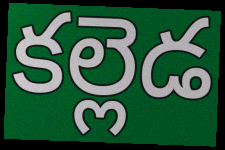
కల్లెడ